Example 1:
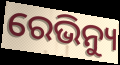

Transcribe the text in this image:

ରେଭିନ୍ୟୁ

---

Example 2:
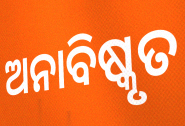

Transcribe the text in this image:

ଅନାବିଷ୍କୃତ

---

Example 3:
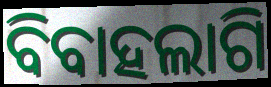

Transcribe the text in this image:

ବିବାହଲାଗି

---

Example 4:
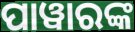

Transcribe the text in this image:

ପାୱାରଙ୍କ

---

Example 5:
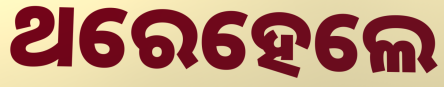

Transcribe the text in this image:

ଥରେହେଲେ